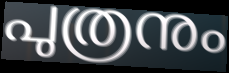
പുത്രനും